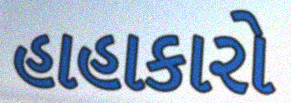
હાહાકારો